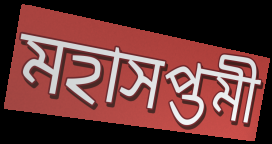
মহাসপ্তমী